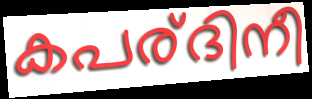
കപര്ദിനീ